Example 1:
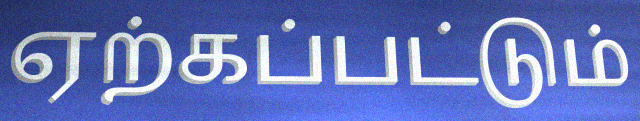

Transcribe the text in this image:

ஏற்கப்பட்டும்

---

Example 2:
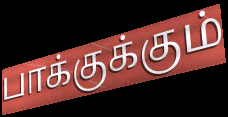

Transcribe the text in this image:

பாக்குக்கும்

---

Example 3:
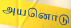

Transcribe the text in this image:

அயனொடு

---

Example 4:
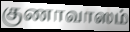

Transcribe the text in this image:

குணாவாஸம்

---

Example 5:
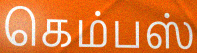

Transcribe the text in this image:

கெம்பஸ்